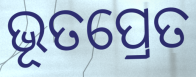
ଭୂତପ୍ରେତ